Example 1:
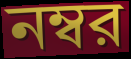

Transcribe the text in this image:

নম্বর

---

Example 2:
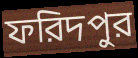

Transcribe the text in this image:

ফরিদপুর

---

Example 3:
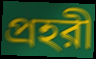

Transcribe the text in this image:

প্রহরী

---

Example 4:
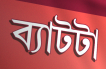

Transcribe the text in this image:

ব্যাটটা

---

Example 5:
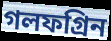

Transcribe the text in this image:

গলফগ্রিন